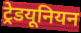
ट्रेडयूनियन